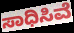
ಸಾಧಿಸಿವೆ